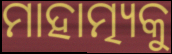
ମାହାତ୍ମ୍ୟକୁ